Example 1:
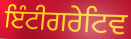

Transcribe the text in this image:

ਇੰਟੀਗਰੇਟਿਵ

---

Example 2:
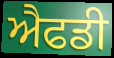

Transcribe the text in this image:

ਐਫਡੀ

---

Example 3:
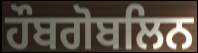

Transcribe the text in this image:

ਹੌਬਗੋਬਲਿਨ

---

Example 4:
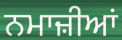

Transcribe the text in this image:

ਨਮਾਜ਼ੀਆਂ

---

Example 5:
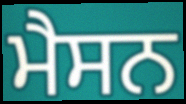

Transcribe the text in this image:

ਮੈਸਨ